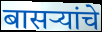
बासऱ्यांचे